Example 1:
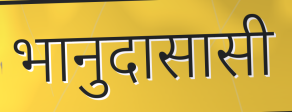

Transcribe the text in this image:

भानुदासासी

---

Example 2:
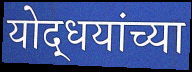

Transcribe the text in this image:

योद्धयांच्या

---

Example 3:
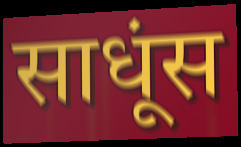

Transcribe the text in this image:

साधूंस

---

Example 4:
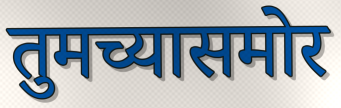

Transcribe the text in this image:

तुमच्यासमोर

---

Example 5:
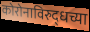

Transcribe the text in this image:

कोरोनाविरुद्धच्या